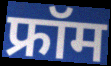
फ्रॉम